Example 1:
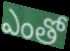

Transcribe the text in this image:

ఎంతో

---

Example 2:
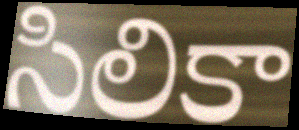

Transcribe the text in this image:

సిలికా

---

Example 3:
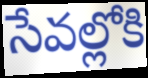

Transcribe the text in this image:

సేవల్లోకి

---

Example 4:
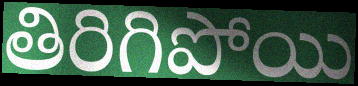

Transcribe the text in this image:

తిరిగిపోయి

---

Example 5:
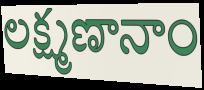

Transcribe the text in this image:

లక్ష్మణానాం